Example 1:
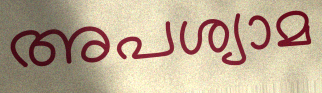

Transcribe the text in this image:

അപശ്യാമ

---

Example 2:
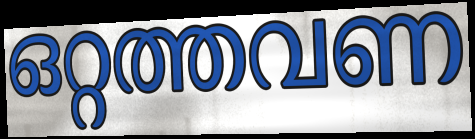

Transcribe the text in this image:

ഒറ്റത്തവണ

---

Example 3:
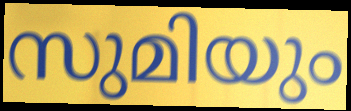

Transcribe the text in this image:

സുമിയും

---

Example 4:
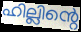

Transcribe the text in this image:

ഹില്ലിന്റെ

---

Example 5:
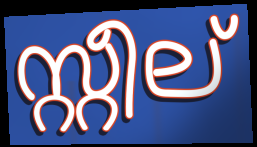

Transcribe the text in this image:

സ്റ്റീല്